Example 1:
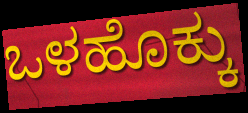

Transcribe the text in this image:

ಒಳಹೊಕ್ಕು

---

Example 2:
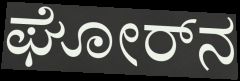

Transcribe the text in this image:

ಘೋರ್‌ನ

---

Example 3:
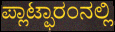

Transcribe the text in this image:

ಪ್ಲಾಟ್ಫಾರಂನಲ್ಲಿ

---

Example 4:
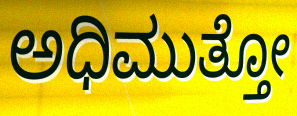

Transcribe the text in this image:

ಅಧಿಮುತ್ತೋ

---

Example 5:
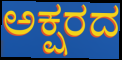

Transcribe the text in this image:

ಅಕ್ಷರದ